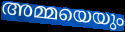
അമ്മയെയും